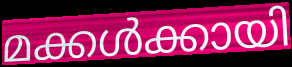
മക്കൾക്കായി